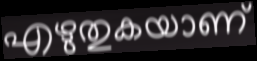
എഴുതുകയാണ്